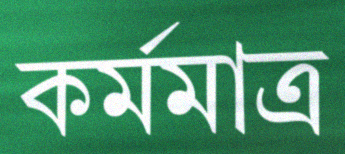
কর্মমাত্র